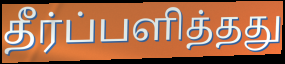
தீர்ப்பளித்தது